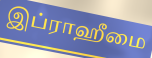
இப்ராஹீமை